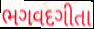
ભગવદગીતા